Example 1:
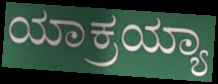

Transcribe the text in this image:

ಯಾಕ್ರಯ್ಯಾ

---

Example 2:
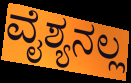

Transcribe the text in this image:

ವೈಶ್ಯನಲ್ಲ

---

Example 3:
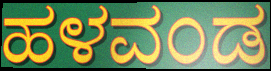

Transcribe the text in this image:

ಹಳವಂಡ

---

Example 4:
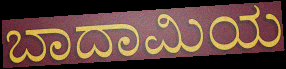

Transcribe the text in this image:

ಬಾದಾಮಿಯ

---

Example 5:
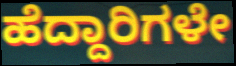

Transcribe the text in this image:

ಹೆದ್ದಾರಿಗಳೇ